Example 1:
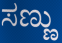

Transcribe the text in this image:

ಸಣ್ಣು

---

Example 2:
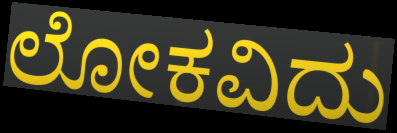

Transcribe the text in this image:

ಲೋಕವಿದು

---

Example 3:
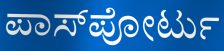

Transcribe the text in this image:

ಪಾಸ್‌ಪೋರ್ಟು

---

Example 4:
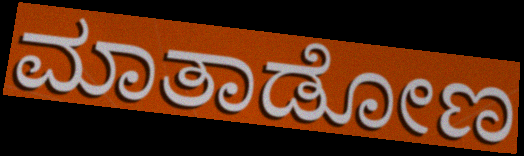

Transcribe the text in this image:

ಮಾತಾಡೋಣ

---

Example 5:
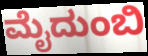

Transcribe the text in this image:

ಮೈದುಂಬಿ